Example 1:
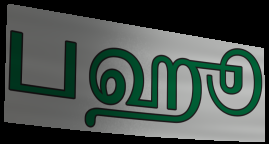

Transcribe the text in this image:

பஹூ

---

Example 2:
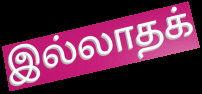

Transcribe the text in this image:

இல்லாதக்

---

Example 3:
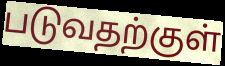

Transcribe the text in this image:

படுவதற்குள்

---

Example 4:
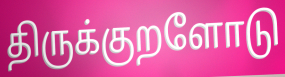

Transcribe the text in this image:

திருக்குறளோடு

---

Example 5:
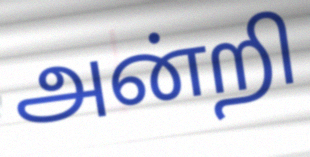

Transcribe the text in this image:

அன்றி